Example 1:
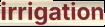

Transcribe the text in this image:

irrigation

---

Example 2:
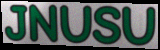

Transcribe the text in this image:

JNUSU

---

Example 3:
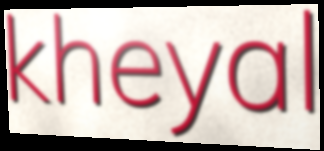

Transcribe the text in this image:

kheyal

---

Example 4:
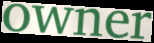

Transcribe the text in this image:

owner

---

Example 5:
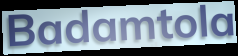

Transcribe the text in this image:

Badamtola